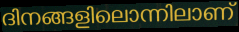
ദിനങ്ങളിലൊന്നിലാണ്